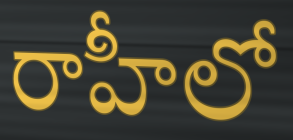
రాహీలో